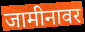
जामीनावर